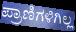
ಪ್ರಾಣಿಗಳಿಗಿಲ್ಲ